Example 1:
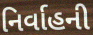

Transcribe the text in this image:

નિર્વાહની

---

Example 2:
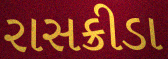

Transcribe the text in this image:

રાસક્રીડા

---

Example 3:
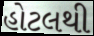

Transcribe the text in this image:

હોટલથી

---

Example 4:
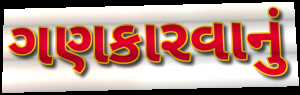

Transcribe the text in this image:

ગણકારવાનું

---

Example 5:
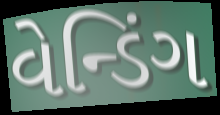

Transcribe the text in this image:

વેન્ડિંગ